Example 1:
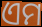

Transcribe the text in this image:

ଏମ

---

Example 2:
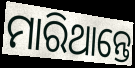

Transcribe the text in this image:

ମାରିଥାନ୍ତେ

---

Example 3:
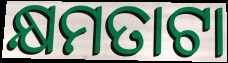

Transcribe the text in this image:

କ୍ଷମତାଟା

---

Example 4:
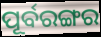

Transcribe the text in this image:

ପୂର୍ବରଙ୍ଗର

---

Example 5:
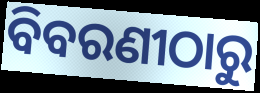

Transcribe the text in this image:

ବିବରଣୀଠାରୁ